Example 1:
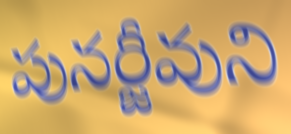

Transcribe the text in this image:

పునర్జీవుని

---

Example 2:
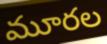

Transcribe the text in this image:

మూరల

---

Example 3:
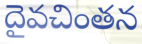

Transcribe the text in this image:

దైవచింతన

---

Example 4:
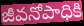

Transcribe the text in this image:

జీవనోపాధికి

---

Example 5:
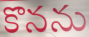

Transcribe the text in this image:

కొనను